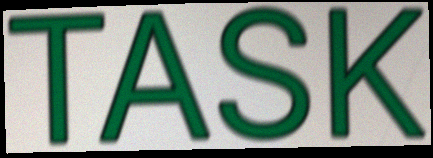
TASK